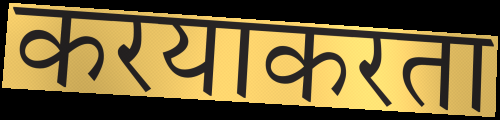
करयाकरता